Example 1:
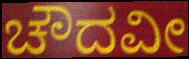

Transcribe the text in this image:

ಚೌದವೀ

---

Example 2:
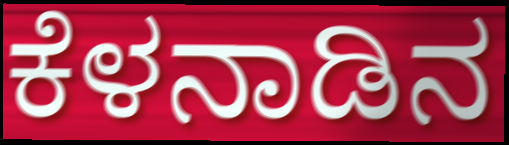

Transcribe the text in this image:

ಕೆಳನಾಡಿನ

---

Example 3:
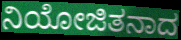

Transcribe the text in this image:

ನಿಯೋಜಿತನಾದ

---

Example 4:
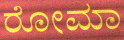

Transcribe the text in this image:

ರೋಮಾ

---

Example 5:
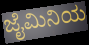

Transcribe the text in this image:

ಜೈಮಿನಿಯ